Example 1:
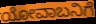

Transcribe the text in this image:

ಯೋವಾಬನಿಗೆ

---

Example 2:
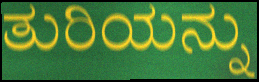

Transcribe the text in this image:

ತುರಿಯನ್ನು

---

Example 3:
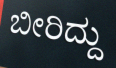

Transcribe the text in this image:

ಬೀರಿದ್ದು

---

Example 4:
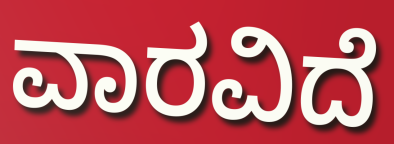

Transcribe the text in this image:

ವಾರವಿದೆ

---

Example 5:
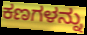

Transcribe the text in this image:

ಕಣಗಳನ್ನು